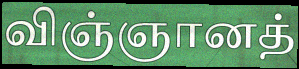
விஞ்ஞானத்